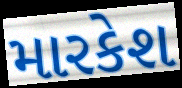
મારકેશ